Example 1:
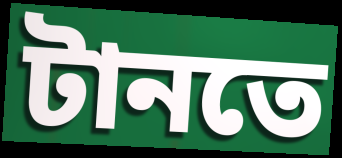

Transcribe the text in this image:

টানতে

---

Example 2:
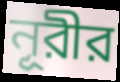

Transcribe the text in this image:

নূরীর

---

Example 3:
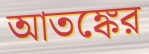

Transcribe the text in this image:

আতঙ্কের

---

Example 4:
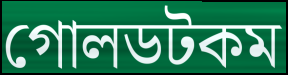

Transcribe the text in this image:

গোলডটকম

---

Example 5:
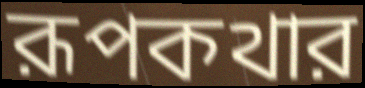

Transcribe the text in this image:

রূপকথার